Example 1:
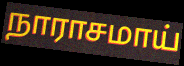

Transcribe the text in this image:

நாராசமாய்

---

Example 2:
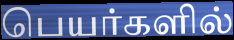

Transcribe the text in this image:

பெயர்களில்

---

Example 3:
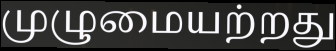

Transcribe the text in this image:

முழுமையற்றது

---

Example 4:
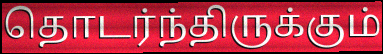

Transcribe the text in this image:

தொடர்ந்திருக்கும்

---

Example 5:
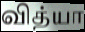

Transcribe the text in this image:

வித்யா